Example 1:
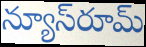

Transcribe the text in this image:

న్యూస్‌రూమ్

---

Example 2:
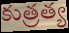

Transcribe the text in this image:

కుత్రత్య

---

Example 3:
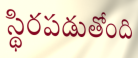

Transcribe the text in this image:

స్థిరపడుతోంది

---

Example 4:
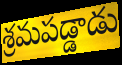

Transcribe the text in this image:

శ్రమపడ్డాడు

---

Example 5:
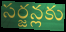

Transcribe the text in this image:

సర్జన్లకు